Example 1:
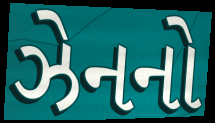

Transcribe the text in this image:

ઝેનનો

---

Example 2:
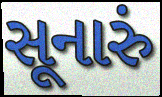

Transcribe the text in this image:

સૂનારું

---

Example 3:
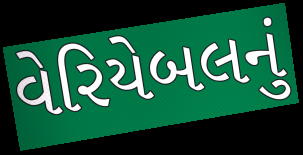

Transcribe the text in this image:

વેરિયેબલનું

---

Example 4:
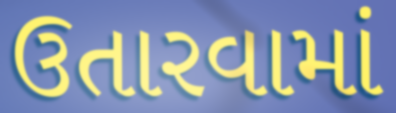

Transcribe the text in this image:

ઉતારવામાં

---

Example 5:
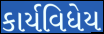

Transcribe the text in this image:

કાર્યવિધેય